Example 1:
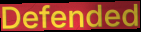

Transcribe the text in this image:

Defended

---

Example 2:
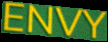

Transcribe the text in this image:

ENVY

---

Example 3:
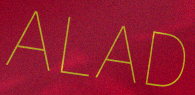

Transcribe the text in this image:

ALAD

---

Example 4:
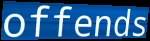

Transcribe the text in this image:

offends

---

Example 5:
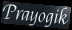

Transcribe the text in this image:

Prayogik